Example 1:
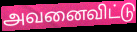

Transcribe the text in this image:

அவனைவிட்டு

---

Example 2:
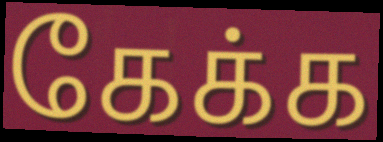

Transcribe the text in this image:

கேக்க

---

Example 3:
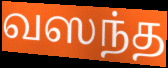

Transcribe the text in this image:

வஸந்த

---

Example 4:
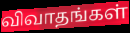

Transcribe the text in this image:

விவாதங்கள்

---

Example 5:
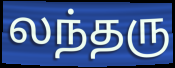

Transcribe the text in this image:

லந்தரு